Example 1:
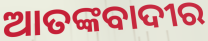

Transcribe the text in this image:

ଆତଙ୍କବାଦୀର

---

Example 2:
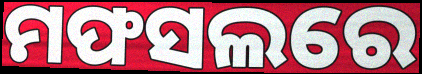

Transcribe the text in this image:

ମଫସଲରେ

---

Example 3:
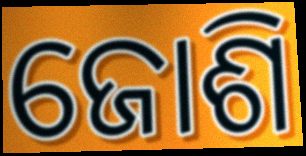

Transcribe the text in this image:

ଜୋଶି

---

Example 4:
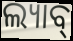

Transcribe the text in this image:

ଲ୍ୟାବ୍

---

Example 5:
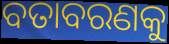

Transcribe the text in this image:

ବତାବରଣକୁ